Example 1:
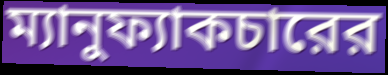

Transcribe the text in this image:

ম্যানুফ্যাকচারের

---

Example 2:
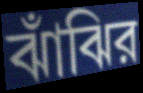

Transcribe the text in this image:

ঝাঁঝির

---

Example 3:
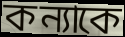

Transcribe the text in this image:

কন্যাকে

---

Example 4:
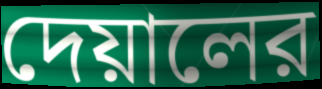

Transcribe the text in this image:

দেয়ালের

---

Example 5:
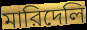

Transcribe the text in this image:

মারিদেলি